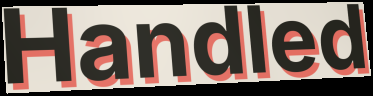
Handled